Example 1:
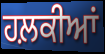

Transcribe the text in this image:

ਹਲ਼ਕੀਆਂ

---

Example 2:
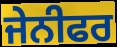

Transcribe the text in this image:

ਜੇਨੀਫਰ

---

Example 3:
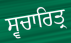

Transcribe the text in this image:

ਸ੍ਵਚਾਰਿਤ੍ਰ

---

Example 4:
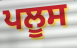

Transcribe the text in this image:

ਪਲੂਸ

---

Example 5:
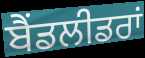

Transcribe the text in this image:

ਬੈਂਡਲੀਡਰਾਂ